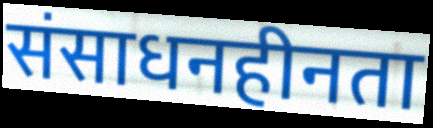
संसाधनहीनता